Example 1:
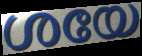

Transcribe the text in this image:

ശയേ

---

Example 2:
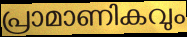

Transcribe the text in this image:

പ്രാമാണികവും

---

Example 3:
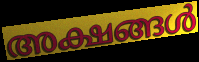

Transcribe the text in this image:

അക്ഷങ്ങൾ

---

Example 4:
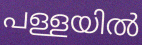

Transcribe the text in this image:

പള്ളയിൽ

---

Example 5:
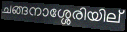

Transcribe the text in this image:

ചങ്ങനാശ്ശേരിയില്